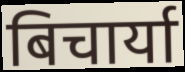
बिचार्या